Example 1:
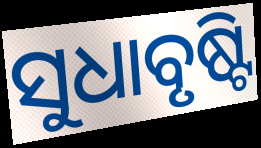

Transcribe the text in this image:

ସୁଧାବୃଷ୍ଟି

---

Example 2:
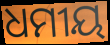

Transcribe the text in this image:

ଧମୀୟ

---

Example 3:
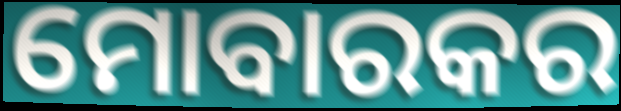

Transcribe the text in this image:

ମୋବାରକର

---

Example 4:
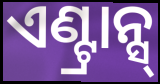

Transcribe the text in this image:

ଏଣ୍ଟ୍ରାନ୍ସ୍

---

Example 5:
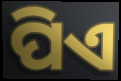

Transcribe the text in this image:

ପିଏ